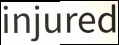
injured